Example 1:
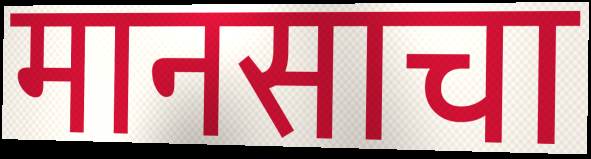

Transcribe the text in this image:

मानसाचा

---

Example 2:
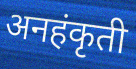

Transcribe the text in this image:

अनहंकृती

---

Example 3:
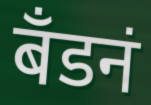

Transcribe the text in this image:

बँडनं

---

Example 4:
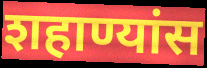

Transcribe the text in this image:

शहाण्यांस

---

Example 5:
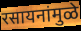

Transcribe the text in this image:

रसायनांमुळे